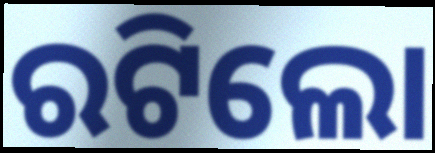
ରଟିଲୋ